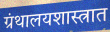
ग्रंथालयशास्त्रात